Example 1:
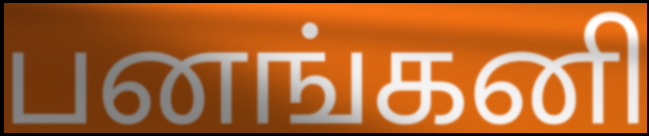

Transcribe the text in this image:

பனங்கனி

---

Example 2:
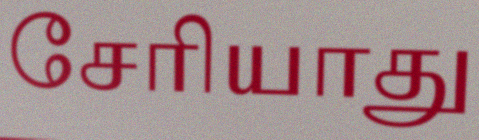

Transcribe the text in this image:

சேரியாது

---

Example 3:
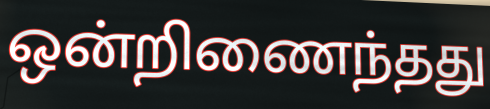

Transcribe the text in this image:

ஒன்றிணைந்தது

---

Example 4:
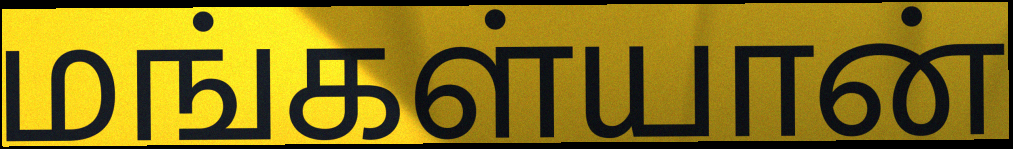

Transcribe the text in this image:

மங்கள்யான்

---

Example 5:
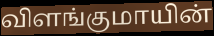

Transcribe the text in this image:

விளங்குமாயின்